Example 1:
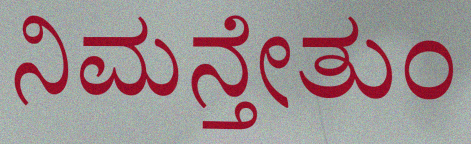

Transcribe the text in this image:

ನಿಮನ್ತೇತುಂ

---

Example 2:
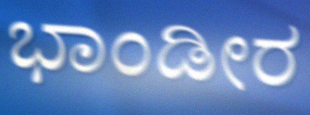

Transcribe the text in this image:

ಭಾಂಡೀರ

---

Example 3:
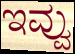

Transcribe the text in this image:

ಇವ್ವು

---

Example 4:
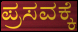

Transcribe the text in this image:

ಪ್ರಸವಕ್ಕೆ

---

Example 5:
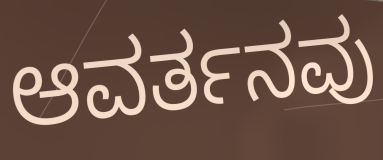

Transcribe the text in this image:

ಆವರ್ತನವು